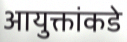
आयुक्तांकडे